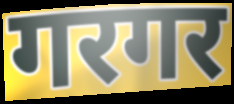
गरगर